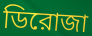
ডিরোজা